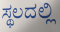
ಸ್ಥಲದಲ್ಲಿ